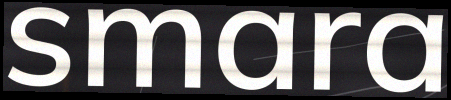
smara